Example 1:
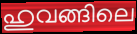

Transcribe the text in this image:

ഹുവങ്ങിലെ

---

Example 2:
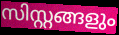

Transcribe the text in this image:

സിസ്റ്റങ്ങളും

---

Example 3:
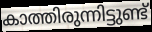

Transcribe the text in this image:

കാത്തിരുന്നിട്ടുണ്ട്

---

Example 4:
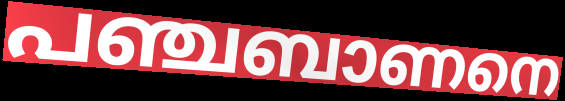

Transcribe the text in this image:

പഞ്ചബാണനെ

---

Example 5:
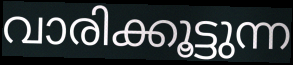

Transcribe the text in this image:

വാരിക്കൂട്ടുന്ന